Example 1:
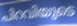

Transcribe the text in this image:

പിറവിയുടെ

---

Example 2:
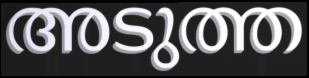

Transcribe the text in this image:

അടുത്ത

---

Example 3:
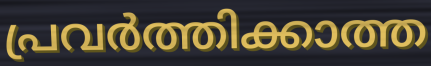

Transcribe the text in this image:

പ്രവർത്തിക്കാത്ത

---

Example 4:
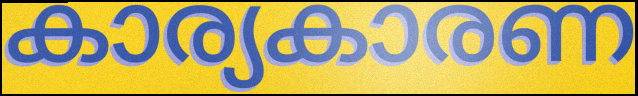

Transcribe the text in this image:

കാര്യകാരണ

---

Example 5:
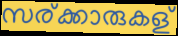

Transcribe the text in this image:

സര്ക്കാരുകള്